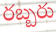
రబ్బరు